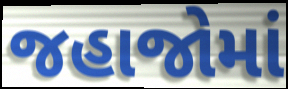
જહાજોમાં